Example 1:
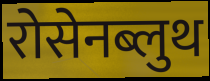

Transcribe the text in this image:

रोसेनब्लुथ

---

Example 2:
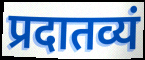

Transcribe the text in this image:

प्रदातव्यं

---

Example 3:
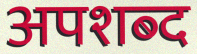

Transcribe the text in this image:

अपशब्‍द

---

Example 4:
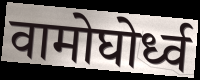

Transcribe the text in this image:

वामोघोर्ध्व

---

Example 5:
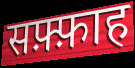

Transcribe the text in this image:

सफ़्फ़ाह